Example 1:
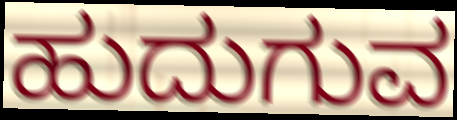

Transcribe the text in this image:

ಹುದುಗುವ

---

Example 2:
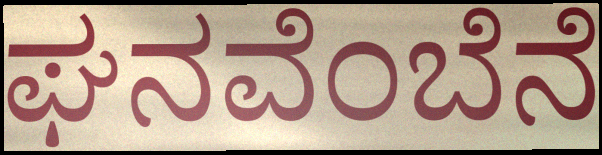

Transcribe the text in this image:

ಘನವೆಂಬೆನೆ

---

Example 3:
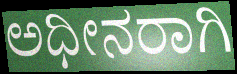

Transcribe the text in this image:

ಅಧೀನರಾಗಿ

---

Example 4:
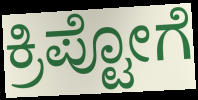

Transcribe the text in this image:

ಕ್ರಿಪ್ಟೋಗೆ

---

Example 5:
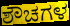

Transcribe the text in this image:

ಶೌಚಗಳ